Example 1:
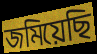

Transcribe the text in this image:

জমিয়েছি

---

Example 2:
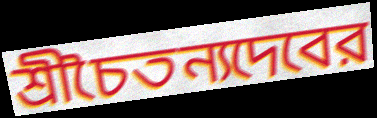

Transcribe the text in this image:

শ্রীচৈতন্যদেবের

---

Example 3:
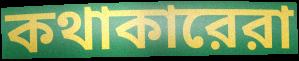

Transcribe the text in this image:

কথাকারেরা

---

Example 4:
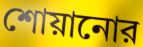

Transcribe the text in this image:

শোয়ানোর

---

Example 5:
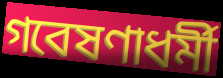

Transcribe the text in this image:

গবেষণাধর্মী